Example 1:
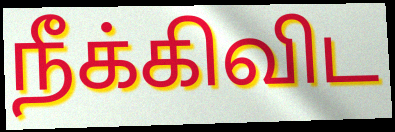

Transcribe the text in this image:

நீக்கிவிட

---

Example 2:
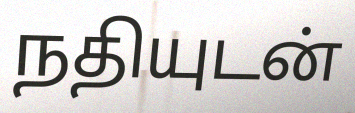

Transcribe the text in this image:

நதியுடன்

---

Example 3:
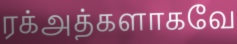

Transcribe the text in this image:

ரக்அத்களாகவே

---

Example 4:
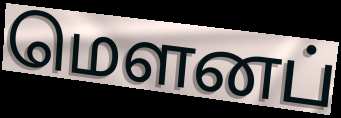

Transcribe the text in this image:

மெளனப்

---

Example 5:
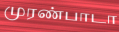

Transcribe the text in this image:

முரண்பாடா